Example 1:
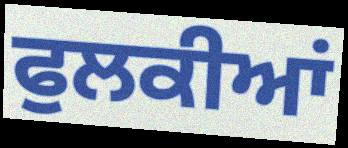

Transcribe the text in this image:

ਫੁਲਕੀਆਂ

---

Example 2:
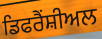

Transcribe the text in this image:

ਡਿਫਰੈਂਸ਼ੀਅਲ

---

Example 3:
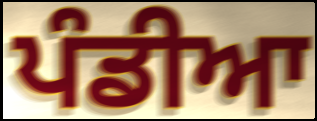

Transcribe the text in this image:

ਪੰਡੀਆ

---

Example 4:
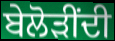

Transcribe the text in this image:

ਬੇਲੋੜੀਂਦੀ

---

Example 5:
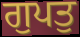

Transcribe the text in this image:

ਗੁਪਤੁ